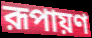
রূপায়ণ